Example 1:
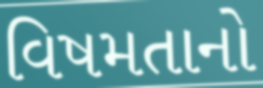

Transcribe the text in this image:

વિષમતાનો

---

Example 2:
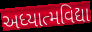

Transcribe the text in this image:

અધ્યાત્મવિદ્યા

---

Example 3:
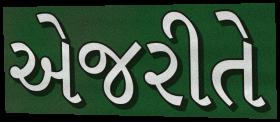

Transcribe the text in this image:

એજરીતે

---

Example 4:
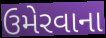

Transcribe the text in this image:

ઉમેરવાના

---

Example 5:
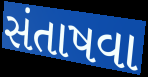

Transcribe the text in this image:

સંતાષવા